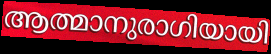
ആത്മാനുരാഗിയായി